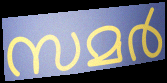
സമർ